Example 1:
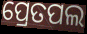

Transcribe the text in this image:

ପ୍ରେତପଲ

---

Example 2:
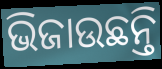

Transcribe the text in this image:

ଭିଜାଉଛନ୍ତି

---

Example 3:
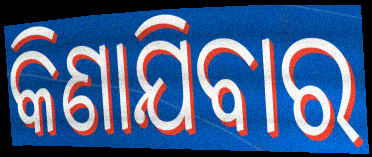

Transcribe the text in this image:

କିଣାଯିବାର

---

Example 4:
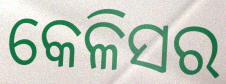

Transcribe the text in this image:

କେଳିସର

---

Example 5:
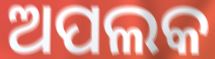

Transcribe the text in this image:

ଅପଲକ